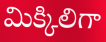
మిక్కిలిగా